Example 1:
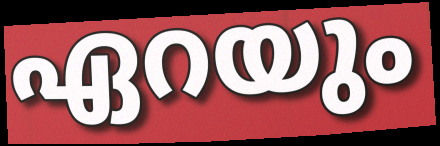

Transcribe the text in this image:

ഏറയും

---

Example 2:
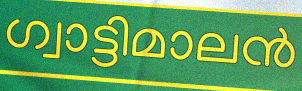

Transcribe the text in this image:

ഗ്വാട്ടിമാലൻ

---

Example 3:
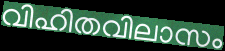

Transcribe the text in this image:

വിഹിതവിലാസം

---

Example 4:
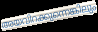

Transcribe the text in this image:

അയവിറക്കുന്നെങ്കിലും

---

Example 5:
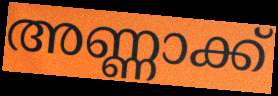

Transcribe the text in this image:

അണ്ണാക്ക്